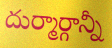
దుర్మార్గాన్నీ